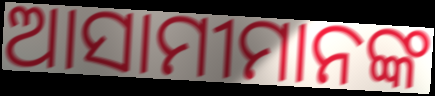
ଆସାମୀମାନଙ୍କ